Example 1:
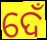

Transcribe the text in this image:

ଦେଁ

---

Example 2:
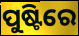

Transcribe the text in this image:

ପୁଷ୍ଟିରେ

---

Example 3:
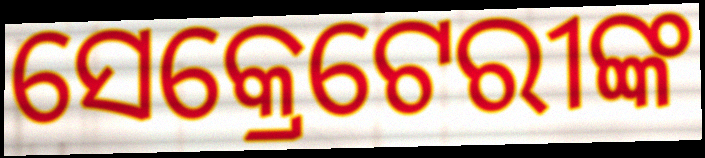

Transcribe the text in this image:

ସେକ୍ରେଟେରୀଙ୍କ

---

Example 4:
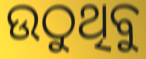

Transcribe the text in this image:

ଉଠୁଥିବୁ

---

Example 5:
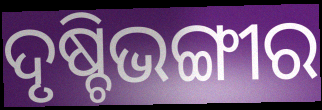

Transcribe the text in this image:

ଦୃଷ୍ଚିଭଙ୍ଗୀର